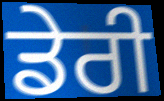
ਡੇਰੀ